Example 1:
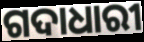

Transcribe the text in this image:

ଗଦାଧାରୀ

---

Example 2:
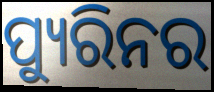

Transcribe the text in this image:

ପ୍ୟୁରିନର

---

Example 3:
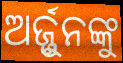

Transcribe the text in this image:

ଅର୍ଜ୍ଜୁନଙ୍କୁ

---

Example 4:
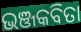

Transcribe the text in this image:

ଭଞ୍ଜକବିତା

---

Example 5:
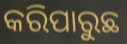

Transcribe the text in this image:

କରିପାରୁଛ